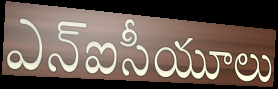
ఎన్ఐసీయూలు